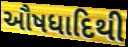
ઔષધાદિથી